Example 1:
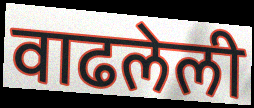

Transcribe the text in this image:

वाढलेली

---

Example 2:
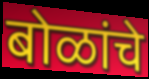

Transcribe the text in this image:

बोळांचे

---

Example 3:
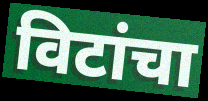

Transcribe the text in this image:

विटांचा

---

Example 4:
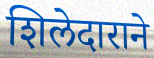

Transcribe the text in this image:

शिलेदाराने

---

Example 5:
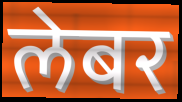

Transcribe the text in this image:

लेबर